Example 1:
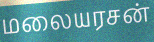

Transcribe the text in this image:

மலையரசன்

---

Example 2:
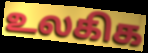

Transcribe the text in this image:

உலகிக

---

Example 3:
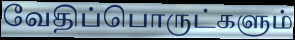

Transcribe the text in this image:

வேதிப்பொருட்களும்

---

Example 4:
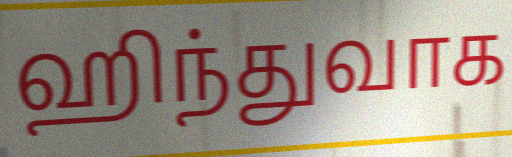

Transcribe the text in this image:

ஹிந்துவாக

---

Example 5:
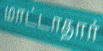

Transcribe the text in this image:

மாட்டாதார்